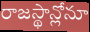
రాజస్థాన్లోనూ